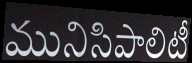
మునిసిపాలిటీ